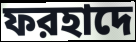
ফরহাদে